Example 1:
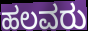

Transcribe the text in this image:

ಹಲವರು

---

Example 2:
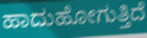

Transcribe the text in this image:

ಹಾದುಹೋಗುತ್ತಿದೆ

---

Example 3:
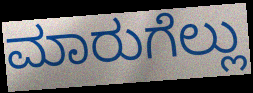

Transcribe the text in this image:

ಮಾರುಗೆಲ್ಲು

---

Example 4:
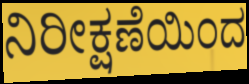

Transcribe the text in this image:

ನಿರೀಕ್ಷಣೆಯಿಂದ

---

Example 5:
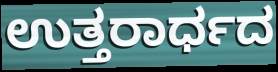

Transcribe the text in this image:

ಉತ್ತರಾರ್ಧದ